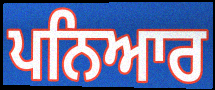
ਪਨਿਆਰ